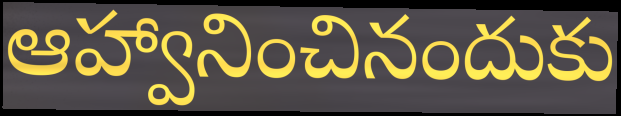
ఆహ్వానించినందుకు